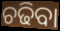
ଚଢିବା